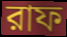
রাফ